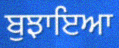
ਬੁਝਾਇਆ